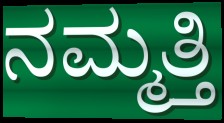
ನಮ್ಮತ್ತಿ